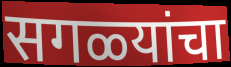
सगळ्यांचा